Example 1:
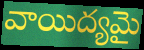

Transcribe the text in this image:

వాయిద్యమై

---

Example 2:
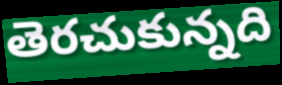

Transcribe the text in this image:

తెరచుకున్నది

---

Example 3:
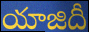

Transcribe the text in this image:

యాజిదీ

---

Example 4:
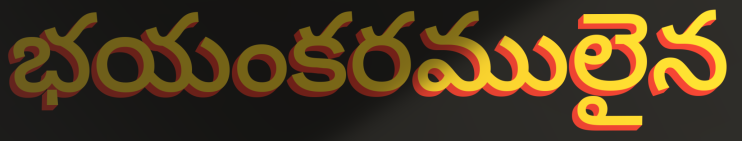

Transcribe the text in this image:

భయంకరములైన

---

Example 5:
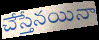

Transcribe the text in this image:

చేస్తేనయినా